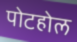
पोटहोल